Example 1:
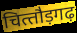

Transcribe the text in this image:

चित्‍तौड़गढ़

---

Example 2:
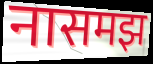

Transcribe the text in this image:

नासमझ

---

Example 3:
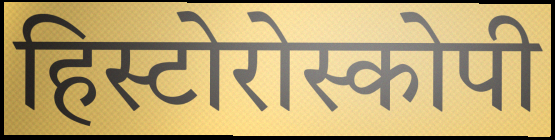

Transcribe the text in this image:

हिस्टोरोस्कोपी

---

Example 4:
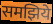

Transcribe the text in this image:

समझिये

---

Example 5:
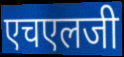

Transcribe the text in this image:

एचएलजी